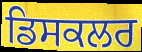
ਡਿਸਕਲਰ